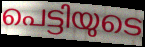
പെട്ടിയുടെ